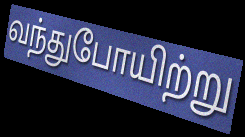
வந்துபோயிற்று